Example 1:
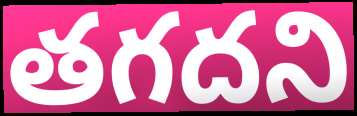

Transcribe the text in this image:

తగదని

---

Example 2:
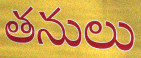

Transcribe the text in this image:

తనులు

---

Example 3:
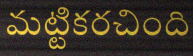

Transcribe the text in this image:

మట్టికరచింది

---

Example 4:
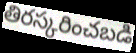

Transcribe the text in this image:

తిరస్కరించబడి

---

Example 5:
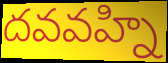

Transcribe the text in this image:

దవవహ్ని